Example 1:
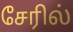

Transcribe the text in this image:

சேரில்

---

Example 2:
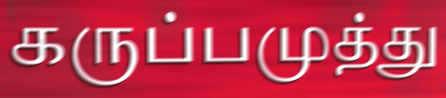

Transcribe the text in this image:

கருப்பமுத்து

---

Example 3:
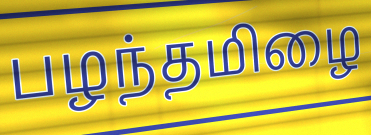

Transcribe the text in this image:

பழந்தமிழை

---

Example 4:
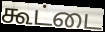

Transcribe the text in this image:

கூட்டை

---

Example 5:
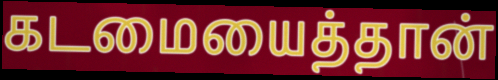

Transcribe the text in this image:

கடமையைத்தான்